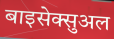
बाइसेक्सुअल